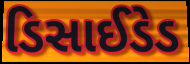
ડિસાઈડેડ